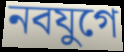
নবযুগে